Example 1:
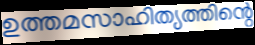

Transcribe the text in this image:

ഉത്തമസാഹിത്യത്തിന്റെ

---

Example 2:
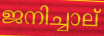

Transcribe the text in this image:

ജനിച്ചാല്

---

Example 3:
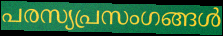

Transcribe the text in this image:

പരസ്യപ്രസംഗങ്ങൾ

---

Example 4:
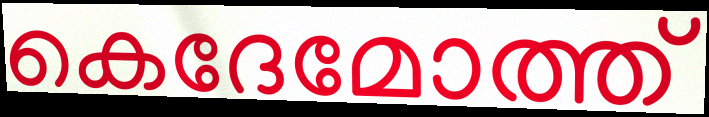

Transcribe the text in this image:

കെദേമോത്ത്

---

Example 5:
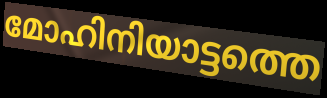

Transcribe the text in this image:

മോഹിനിയാട്ടത്തെ